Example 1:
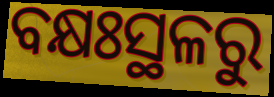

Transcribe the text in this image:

ବକ୍ଷଃସ୍ଥଳରୁ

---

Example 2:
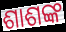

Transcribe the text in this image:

ଶାଶଙ୍କ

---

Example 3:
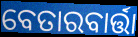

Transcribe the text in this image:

ବେତାରବାର୍ତ୍ତା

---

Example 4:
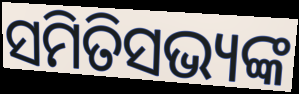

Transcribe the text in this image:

ସମିତିସଭ୍ୟଙ୍କ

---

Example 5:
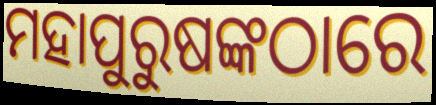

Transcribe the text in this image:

ମହାପୁରୁଷଙ୍କଠାରେ